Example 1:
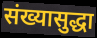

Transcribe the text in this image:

संख्यासुद्धा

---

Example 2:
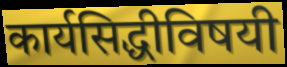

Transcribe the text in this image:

कार्यसिद्धीविषयी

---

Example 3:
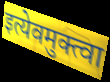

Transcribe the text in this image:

इत्येवमुक्त्वा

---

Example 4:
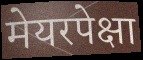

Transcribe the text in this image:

मेयरपेक्षा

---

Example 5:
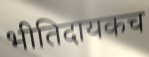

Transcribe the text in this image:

भीतिदायकच